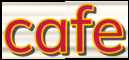
cafe